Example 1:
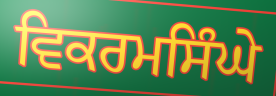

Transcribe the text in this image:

ਵਿਕਰਮਸਿੰਘੇ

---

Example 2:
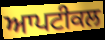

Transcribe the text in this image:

ਆਪਟੀਕਲ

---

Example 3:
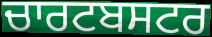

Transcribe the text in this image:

ਚਾਰਟਬਸਟਰ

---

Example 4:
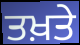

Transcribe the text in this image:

ਤਖ਼ਤੇ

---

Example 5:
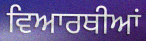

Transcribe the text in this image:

ਵਿਆਰਥੀਆਂ